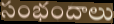
సంభందాలు